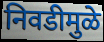
निवडीमुळे